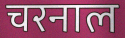
चरनाल